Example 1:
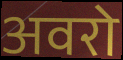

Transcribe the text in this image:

अवरो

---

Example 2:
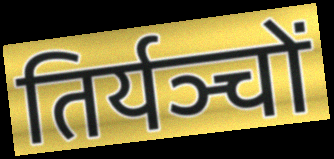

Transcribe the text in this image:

तिर्यञ्चों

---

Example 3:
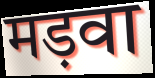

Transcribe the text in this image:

मड़वा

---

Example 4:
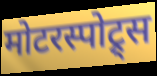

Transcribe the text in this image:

मोटरस्पोट्र्स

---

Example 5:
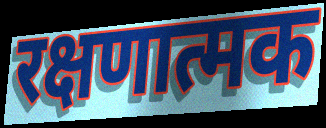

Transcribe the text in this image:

रक्षणात्मक